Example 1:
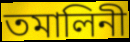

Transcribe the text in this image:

তমালিনী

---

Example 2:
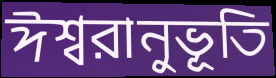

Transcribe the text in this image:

ঈশ্বরানুভূতি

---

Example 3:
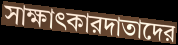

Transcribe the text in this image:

সাক্ষাৎকারদাতাদের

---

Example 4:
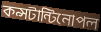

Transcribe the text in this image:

কন্সটান্টিনোপল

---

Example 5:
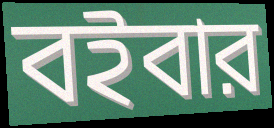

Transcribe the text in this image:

বইবার